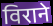
विराने